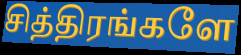
சித்திரங்களே